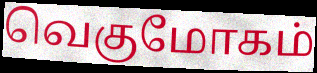
வெகுமோகம்